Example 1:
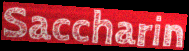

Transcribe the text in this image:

Saccharin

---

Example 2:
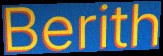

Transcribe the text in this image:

Berith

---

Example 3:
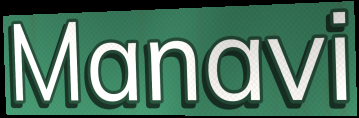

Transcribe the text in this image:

Manavi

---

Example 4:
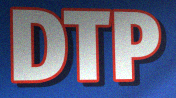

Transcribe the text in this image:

DTP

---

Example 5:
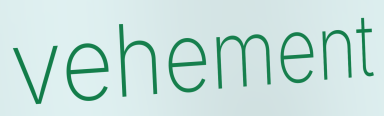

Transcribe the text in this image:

vehement